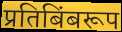
प्रतिबिंबरूप